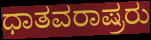
ಧಾತವರಾಷ್ರರು